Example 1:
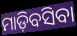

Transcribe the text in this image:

ମାଡ଼ିବସିବା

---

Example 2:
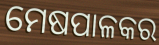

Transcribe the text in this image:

ମେଷପାଳକର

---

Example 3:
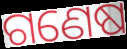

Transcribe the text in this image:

ଗଣେଷ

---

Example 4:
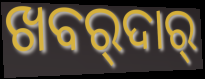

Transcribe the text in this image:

ଖବର୍‍ଦାର୍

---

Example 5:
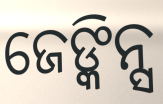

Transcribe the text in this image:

ଜେଙ୍କିନ୍ସ